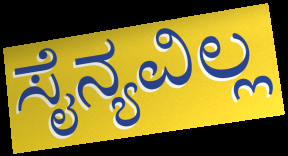
ಸೈನ್ಯವಿಲ್ಲ